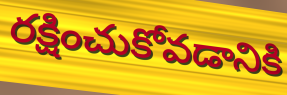
రక్షించుకోవడానికి